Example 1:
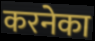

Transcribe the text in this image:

करनेका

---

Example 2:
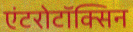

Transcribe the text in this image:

एंटरोटॉक्सिन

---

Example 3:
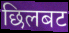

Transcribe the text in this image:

छिलबट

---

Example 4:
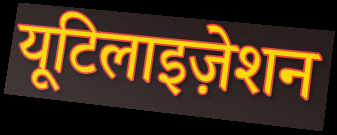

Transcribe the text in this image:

यूटिलाइज़ेशन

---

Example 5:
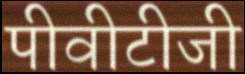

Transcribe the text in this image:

पीवीटीजी